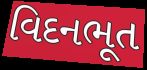
વિદનભૂત